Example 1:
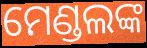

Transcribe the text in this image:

ମେଣ୍ଡଲଙ୍କ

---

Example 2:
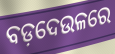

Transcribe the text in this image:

ବଡ଼ଦେଉଳରେ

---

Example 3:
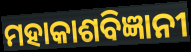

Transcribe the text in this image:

ମହାକାଶବିଜ୍ଞାନୀ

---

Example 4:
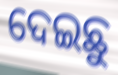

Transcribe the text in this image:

ଦେଇଛୁ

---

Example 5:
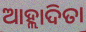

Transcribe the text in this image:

ଆହ୍ଲାଦିତା